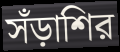
সঁড়াশির